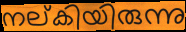
നല്കിയിരുന്നു